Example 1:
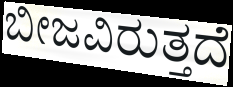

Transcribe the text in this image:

ಬೀಜವಿರುತ್ತದೆ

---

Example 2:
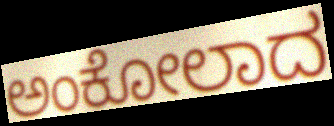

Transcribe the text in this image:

ಅಂಕೋಲಾದ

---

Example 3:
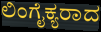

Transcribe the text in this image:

ಲಿಂಗೈಕ್ಯರಾದ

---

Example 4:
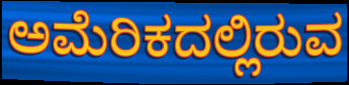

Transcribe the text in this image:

ಅಮೆರಿಕದಲ್ಲಿರುವ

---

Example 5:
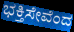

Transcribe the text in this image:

ಭಕ್ತಿಸೇವೆಂದ